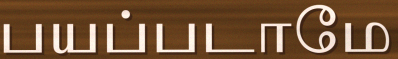
பயப்படாமே